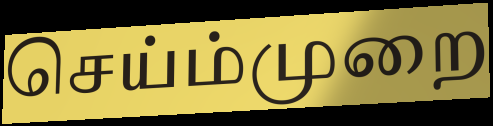
செய்ம்முறை